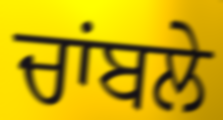
ਚਾਂਬਲੇ